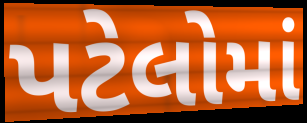
પટેલોમાં